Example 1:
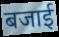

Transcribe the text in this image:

बजाई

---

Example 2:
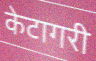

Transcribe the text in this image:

केटागरी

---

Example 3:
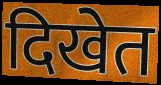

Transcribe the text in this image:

दिखेत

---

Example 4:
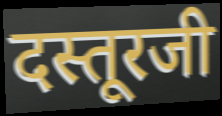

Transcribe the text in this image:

दस्तूरजी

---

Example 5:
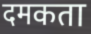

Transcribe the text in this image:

दमकता